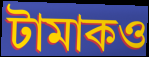
টামাকও